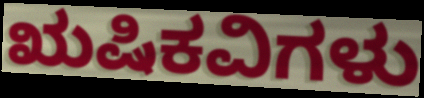
ಋಷಿಕವಿಗಳು